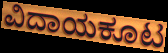
ವಿದಾಯಕೂಟ